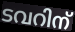
ടവറിന്